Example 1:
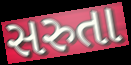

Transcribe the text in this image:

સરુતા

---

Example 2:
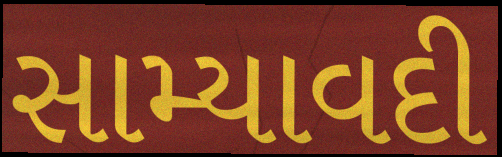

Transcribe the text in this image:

સામ્યાવદી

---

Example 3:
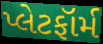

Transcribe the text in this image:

પ્લેટફૉર્મ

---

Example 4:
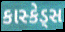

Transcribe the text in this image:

કાસ્કેડ્સ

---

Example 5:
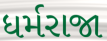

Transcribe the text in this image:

ધર્મરાજા